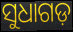
ସୁଧାଗଡ଼